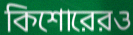
কিশোরেরও